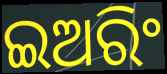
ଇଅରିଂ